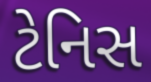
ટેનિસ